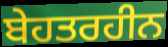
ਬੇਹਤਰਹੀਨ